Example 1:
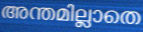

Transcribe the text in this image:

അന്തമില്ലാതെ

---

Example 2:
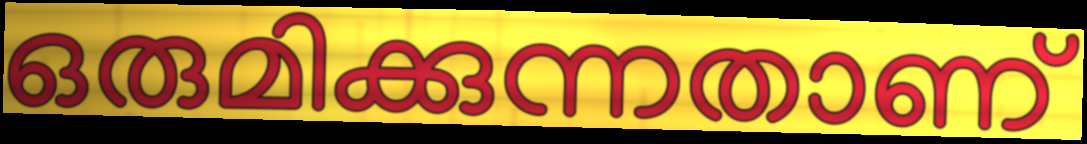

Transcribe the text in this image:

ഒരുമിക്കുന്നതാണ്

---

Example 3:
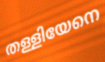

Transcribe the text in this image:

തള്ളിയേനെ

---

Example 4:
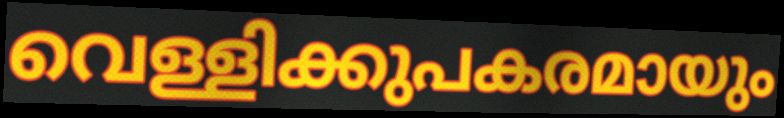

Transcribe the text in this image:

വെള്ളിക്കുപകരമായും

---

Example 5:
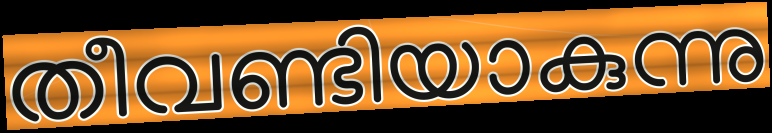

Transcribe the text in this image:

തീവണ്ടിയാകുന്നു